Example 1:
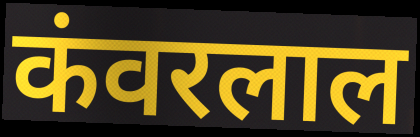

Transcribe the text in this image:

कंवरलाल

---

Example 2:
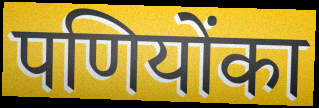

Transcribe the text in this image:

पणियोंका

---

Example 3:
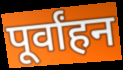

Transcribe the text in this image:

पूर्वांहन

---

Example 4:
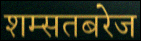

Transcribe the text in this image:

शम्सतबरेज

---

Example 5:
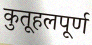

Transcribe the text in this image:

कुतूहलपूर्ण